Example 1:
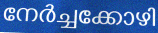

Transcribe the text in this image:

നേർച്ചക്കോഴി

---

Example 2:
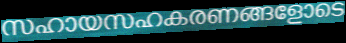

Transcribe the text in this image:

സഹായസഹകരണങ്ങളോടെ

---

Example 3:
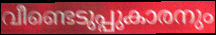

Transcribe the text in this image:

വീണ്ടെടുപ്പുകാരനും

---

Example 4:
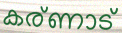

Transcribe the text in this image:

കര്ണാട്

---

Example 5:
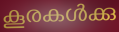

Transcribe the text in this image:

കൂരകൾക്കു